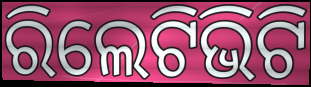
ରିଲେଟିଭିଟି